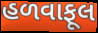
હળવાફૂલ